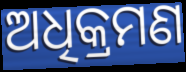
ଅଧିକ୍ରମଣ